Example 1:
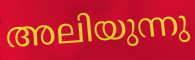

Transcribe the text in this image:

അലിയുന്നു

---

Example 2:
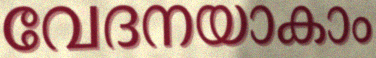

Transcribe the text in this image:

വേദനയാകാം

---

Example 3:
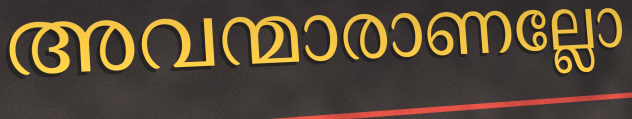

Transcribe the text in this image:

അവന്മാരാണല്ലോ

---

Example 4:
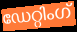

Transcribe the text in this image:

ഡേറ്റിംഗ്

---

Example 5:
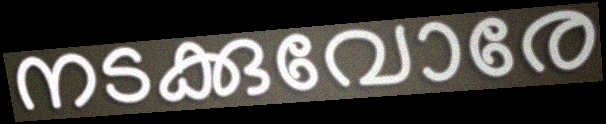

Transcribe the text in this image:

നടക്കുവോരേ